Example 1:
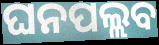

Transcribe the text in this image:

ଘନପଲ୍ଲବ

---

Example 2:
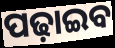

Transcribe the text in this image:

ପଢ଼ାଇବ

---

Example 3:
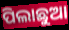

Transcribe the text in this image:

ପିଲାଛୁଆ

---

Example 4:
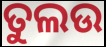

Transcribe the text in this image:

ତୁଲଉ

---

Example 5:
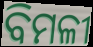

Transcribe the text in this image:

ବିମଳୀ